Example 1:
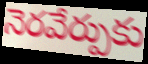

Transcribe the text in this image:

నెరవేర్పుకు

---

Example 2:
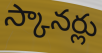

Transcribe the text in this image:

స్కానర్లు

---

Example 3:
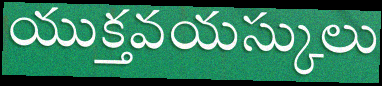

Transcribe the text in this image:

యుక్తవయస్కులు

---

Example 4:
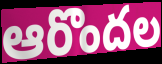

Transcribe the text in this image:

ఆరొందల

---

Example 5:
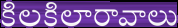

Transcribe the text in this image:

కిలకిలారావాలు